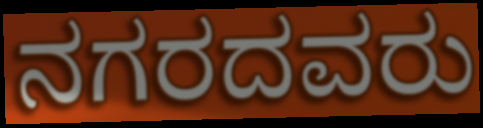
ನಗರದವರು